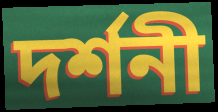
দৰ্শনী